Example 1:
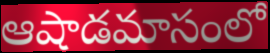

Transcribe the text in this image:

ఆషాడమాసంలో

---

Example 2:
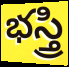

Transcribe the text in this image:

భస్త్రి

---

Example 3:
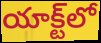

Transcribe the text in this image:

యాక్ట్‌లో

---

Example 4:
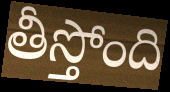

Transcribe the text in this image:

తీస్తోంది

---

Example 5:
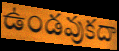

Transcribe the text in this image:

ఉండవుకదా